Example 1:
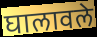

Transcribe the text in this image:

घालावले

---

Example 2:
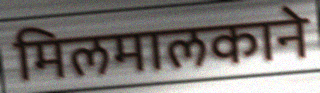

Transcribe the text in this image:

मिलमालकाने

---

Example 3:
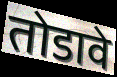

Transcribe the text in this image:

तोडावे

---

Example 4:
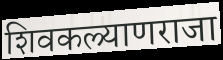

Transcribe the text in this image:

शिवकल्याणराजा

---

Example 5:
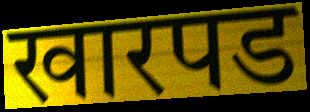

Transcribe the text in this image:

खारपड